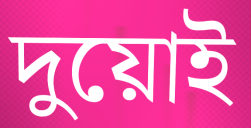
দুয়োই